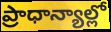
ప్రాధాన్యాల్లో